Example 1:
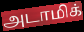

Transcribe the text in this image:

அடாமிக்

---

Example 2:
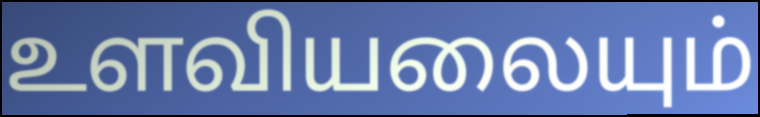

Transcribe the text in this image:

உளவியலையும்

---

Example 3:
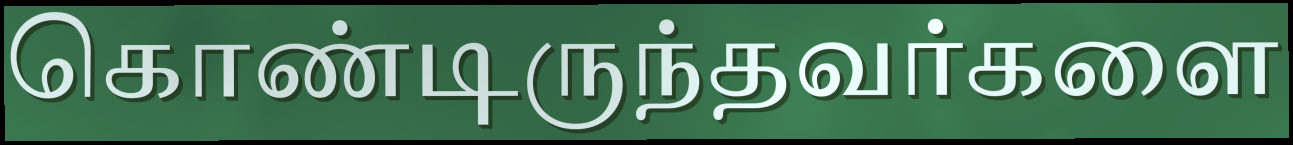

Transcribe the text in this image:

கொண்டிருந்தவர்களை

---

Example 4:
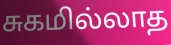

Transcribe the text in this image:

சுகமில்லாத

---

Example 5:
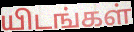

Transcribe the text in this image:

யிடங்கள்